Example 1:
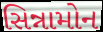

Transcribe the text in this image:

સિન્નામોન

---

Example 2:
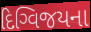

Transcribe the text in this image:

દિગ્વિજયના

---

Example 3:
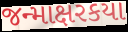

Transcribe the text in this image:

જન્માક્ષરકયા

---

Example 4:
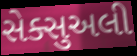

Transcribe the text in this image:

સેક્સુઅલી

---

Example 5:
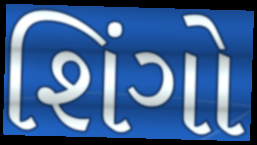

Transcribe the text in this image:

શિંગો